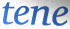
tene